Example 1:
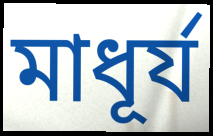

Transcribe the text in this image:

মাধূর্য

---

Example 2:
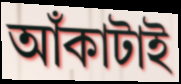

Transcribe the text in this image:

আঁকাটাই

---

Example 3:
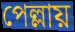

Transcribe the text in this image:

পেল্লায়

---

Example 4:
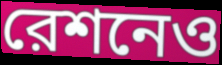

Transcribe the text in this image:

রেশনেও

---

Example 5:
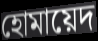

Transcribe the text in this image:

হোমায়েদ